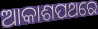
ଆକାଶପଥରେ